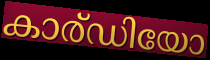
കാര്ഡിയോ